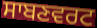
ਸਾਬਣਵਰਟ